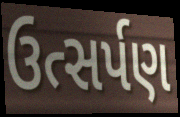
ઉત્સર્પણ